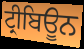
ਟ੍ਰੀਬਿਊਨ